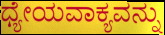
ಧ್ಯೇಯವಾಕ್ಯವನ್ನು